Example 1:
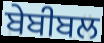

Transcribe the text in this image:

ਬੇਬੀਬਲ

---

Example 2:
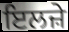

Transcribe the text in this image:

ਇਲਜ਼ੇ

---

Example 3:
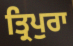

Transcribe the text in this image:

ਤ੍ਰਿਪੁਰਾ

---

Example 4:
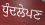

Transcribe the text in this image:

ਧੁੰਦਲੇਪਣ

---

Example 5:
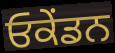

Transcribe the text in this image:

ਓਕੇਂਡਨ